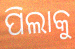
ପିଲାକୁ